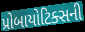
પ્રોબાયોટિક્સની